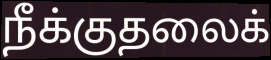
நீக்குதலைக்